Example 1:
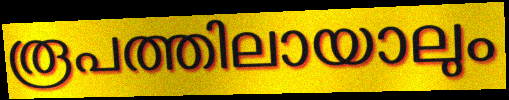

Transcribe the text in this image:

രൂപത്തിലായാലും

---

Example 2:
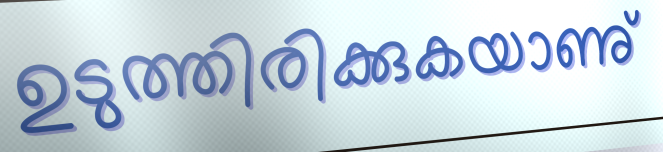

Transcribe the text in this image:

ഉടുത്തിരിക്കുകയാണു്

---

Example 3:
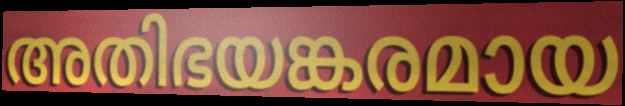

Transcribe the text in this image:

അതിഭയങ്കരമായ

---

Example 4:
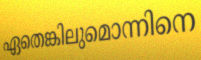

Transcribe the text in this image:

ഏതെങ്കിലുമൊന്നിനെ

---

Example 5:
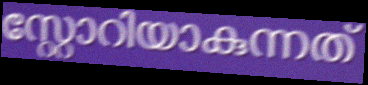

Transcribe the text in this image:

സ്റ്റോറിയാകുന്നത്